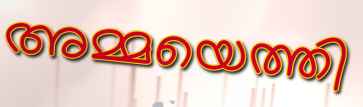
അമ്മയെത്തി